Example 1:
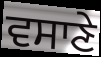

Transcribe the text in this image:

ਵਸਾਣੇ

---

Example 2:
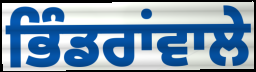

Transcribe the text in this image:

ਭਿੰਡਰਾਂਵਾਲੇ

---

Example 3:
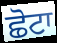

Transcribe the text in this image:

ਛੋਟਾ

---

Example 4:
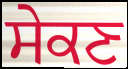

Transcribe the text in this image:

ਸੇਕਣ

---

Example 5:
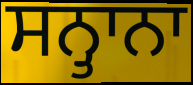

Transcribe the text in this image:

ਸਨ੍ਤਾਨਾ